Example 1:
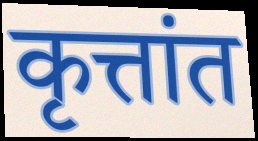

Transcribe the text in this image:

कृत्तांत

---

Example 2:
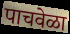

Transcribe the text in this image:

पाचवेळा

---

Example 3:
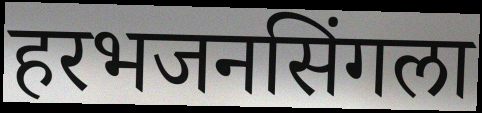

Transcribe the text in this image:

हरभजनसिंगला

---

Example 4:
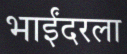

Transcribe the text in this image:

भाईंदरला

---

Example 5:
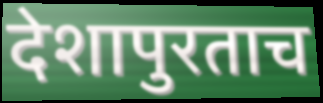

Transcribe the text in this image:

देशापुरताच